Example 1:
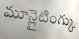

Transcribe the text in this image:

మూన్లైటింగ్కు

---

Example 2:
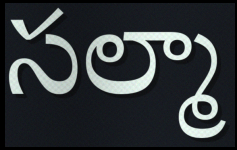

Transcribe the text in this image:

సల్మా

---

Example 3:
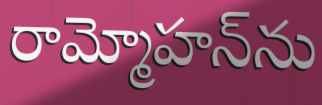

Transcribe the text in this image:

రామ్మోహన్‌ను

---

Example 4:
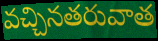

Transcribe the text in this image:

వచ్చినతరువాత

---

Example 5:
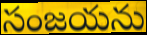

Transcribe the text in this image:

సంజయను